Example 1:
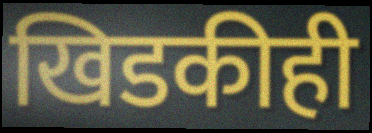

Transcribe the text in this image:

खिडकीही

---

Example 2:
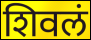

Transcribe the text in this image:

शिवलं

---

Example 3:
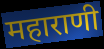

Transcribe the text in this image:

महाराणी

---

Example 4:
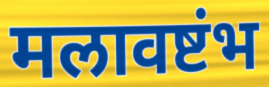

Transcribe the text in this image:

मलावष्टंभ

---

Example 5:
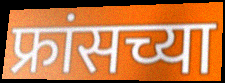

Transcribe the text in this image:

फ्रांसच्या